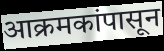
आक्रमकांपासून